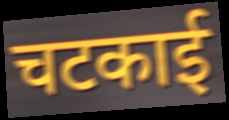
चटकाई